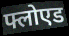
फ्लोएड